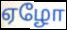
ஏழோ